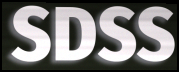
SDSS